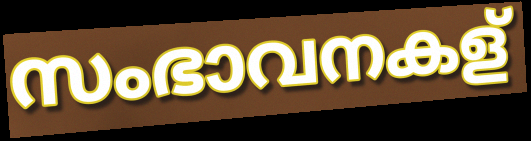
സംഭാവനകള്